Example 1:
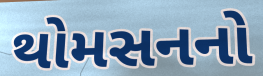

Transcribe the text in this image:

થોમસનનો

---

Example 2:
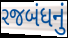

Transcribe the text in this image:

રજબંધનું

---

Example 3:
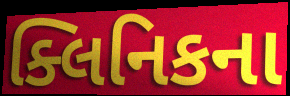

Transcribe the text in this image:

ક્લિનિકના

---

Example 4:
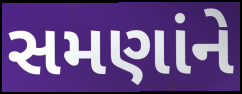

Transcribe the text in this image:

સમણાંને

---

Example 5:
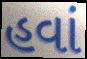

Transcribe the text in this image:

હવાં